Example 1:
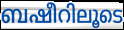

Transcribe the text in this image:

ബഷീറിലൂടെ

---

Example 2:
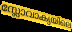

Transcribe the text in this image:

സ്ലോവാക്യയിലെ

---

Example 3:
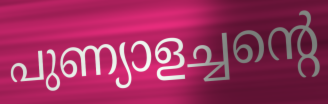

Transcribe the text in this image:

പുണ്യാളച്ചന്റെ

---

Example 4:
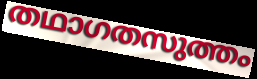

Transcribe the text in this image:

തഥാഗതസുത്തം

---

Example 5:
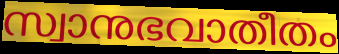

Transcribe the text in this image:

സ്വാനുഭവാതീതം